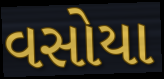
વસોયા